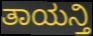
ತಾಯನ್ತಿ